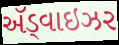
ઍડ્વાઇઝર